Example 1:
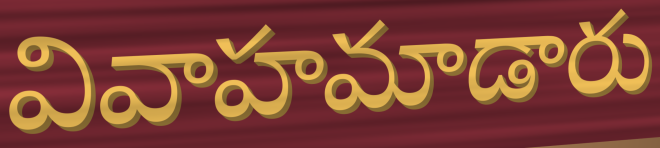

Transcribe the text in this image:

వివాహమాడారు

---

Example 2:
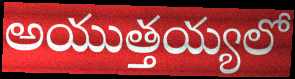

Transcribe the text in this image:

అయుత్తయ్యలో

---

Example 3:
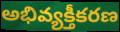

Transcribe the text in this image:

అభివ్యక్తీకరణ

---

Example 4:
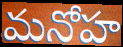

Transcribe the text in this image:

మనోహ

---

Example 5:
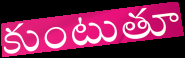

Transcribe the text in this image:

కుంటుతూ